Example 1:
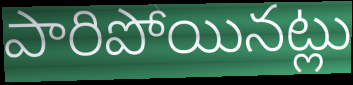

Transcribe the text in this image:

పారిపోయినట్లు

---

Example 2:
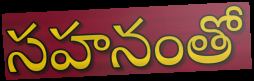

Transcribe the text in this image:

సహనంతో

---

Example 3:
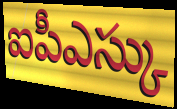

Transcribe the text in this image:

ఐపీఎస్కు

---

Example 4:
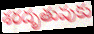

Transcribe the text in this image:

శరదృతువుకు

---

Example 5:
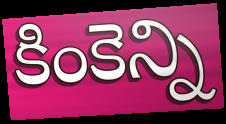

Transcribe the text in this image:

కింకెన్ని